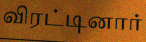
விரட்டினார்